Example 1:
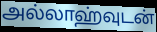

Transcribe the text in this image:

அல்லாஹ்வுடன்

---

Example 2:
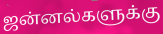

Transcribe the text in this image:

ஜன்னல்களுக்கு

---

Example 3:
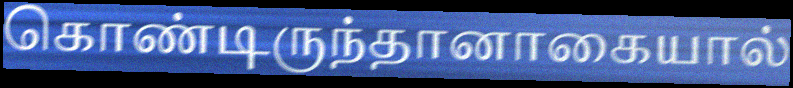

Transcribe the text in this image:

கொண்டிருந்தானாகையால்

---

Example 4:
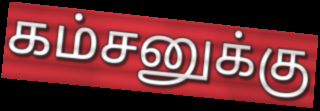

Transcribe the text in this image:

கம்சனுக்கு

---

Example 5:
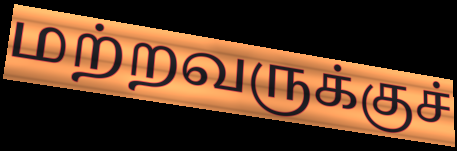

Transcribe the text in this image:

மற்றவருக்குச்